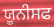
ਯੂਨੀਸਫ